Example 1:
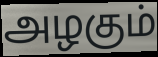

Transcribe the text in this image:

அழகும்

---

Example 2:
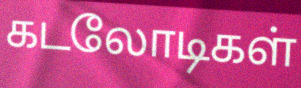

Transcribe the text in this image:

கடலோடிகள்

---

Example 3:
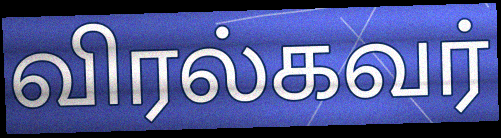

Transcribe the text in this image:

விரல்கவர்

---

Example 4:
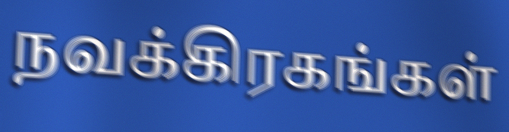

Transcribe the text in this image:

நவக்கிரகங்கள்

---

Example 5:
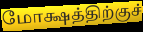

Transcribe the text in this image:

மோக்ஷத்திற்குச்